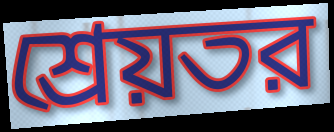
শ্রেয়তর